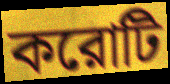
করোটি